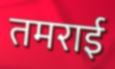
तमराई